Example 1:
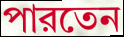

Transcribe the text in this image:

পারতেন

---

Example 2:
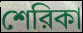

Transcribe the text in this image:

শেরিকা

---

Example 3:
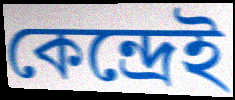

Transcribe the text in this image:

কেন্দ্রেই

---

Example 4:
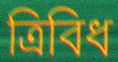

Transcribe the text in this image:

ত্রিবিধ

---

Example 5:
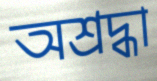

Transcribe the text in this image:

অশ্রদ্ধা